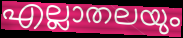
എല്ലാതലയും